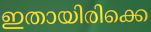
ഇതായിരിക്കെ